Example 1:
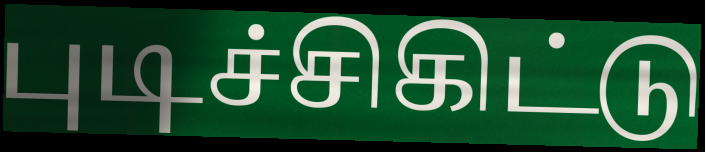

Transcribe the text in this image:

புடிச்சிகிட்டு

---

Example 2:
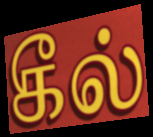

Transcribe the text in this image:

கீல்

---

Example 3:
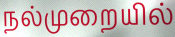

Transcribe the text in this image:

நல்முறையில்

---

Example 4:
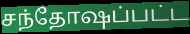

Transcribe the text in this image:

சந்தோஷப்பட்ட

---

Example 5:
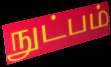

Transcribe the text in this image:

நுட்பம்